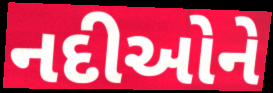
નદીઓને